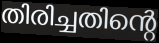
തിരിച്ചതിന്റെ